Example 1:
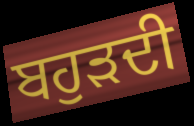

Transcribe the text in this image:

ਬਹੁੜਦੀ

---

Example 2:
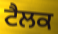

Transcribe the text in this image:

ਟੈਲਕ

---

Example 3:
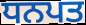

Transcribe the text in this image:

ਧਨਪਤ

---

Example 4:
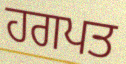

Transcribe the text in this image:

ਹਗਪਤ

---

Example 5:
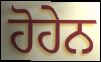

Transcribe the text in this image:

ਹੋਹੇਨ